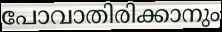
പോവാതിരിക്കാനും